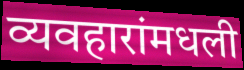
व्यवहारांमधली